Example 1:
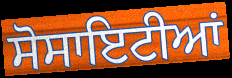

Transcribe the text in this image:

ਸੋਸਾਇਟੀਆਂ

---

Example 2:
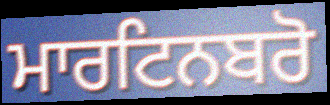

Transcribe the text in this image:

ਮਾਰਟਿਨਬਰੋ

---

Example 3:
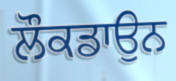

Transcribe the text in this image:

ਲੌਕਡਾਉਨ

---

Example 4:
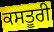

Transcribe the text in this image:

ਕਸਤੂਰੀ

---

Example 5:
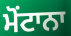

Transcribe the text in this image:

ਮੋਂਟਾਨਾ